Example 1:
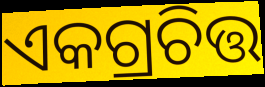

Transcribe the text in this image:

ଏକଗ୍ରଚିତ୍ତ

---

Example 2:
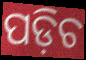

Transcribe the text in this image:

ପଡ଼ିଚ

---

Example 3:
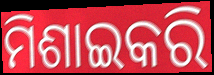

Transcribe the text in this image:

ମିଶାଇକରି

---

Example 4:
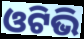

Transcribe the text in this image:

ଓଟିଭି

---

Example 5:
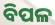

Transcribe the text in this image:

ବିପଳ